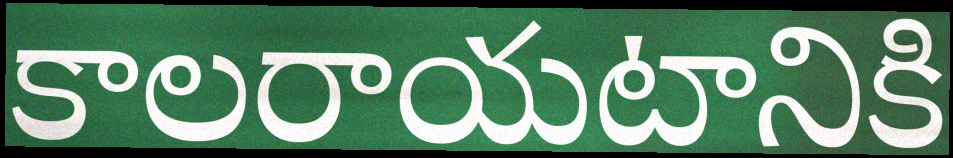
కాలరాయటానికి